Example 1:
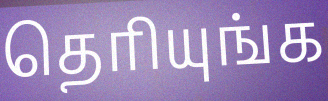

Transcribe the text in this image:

தெரியுங்க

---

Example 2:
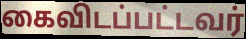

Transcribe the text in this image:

கைவிடப்பட்டவர்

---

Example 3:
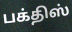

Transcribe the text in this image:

பக்திஸ்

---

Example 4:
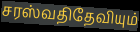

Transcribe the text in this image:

சரஸ்வதிதேவியும்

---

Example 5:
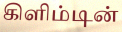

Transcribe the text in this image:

கிளிம்டின்